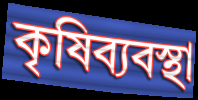
কৃষিব্যবস্থা